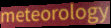
meteorology